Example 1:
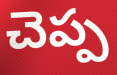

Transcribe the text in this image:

చెప్ప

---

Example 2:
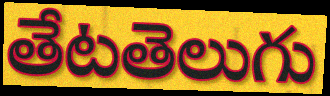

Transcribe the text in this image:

తేటతెలుగు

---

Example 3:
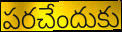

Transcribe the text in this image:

పరచేందుకు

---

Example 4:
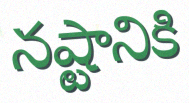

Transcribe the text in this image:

నష్టానికి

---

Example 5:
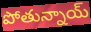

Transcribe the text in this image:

పోతున్నాయ్